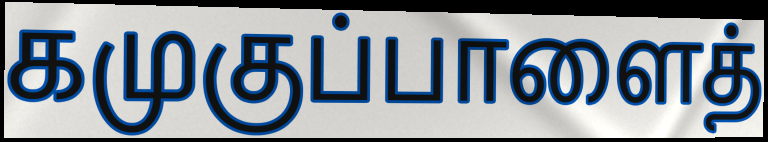
கமுகுப்பாளைத்